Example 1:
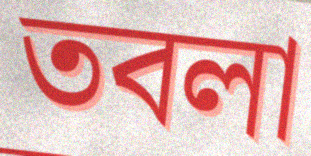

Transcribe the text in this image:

তবলা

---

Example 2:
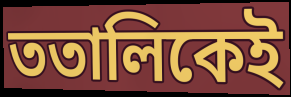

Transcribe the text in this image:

ততালিকেই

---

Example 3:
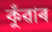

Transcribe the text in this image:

কুঁৱাৰ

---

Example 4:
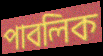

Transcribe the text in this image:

পাবলিক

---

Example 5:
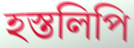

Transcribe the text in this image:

হস্তলিপি